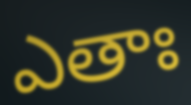
ఎతాః